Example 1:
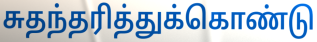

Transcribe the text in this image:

சுதந்தரித்துக்கொண்டு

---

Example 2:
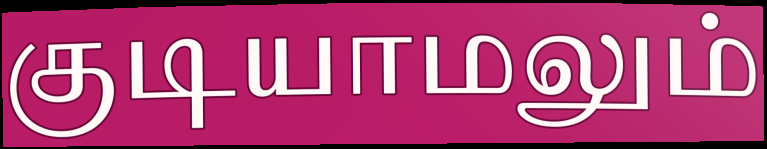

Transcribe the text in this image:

குடியாமலும்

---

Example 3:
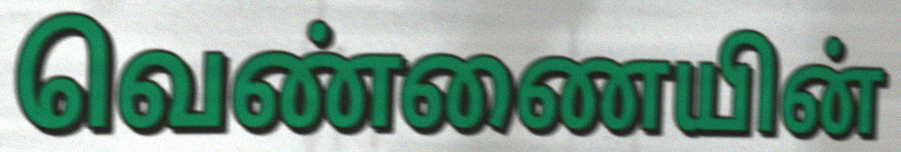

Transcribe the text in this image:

வெண்ணையின்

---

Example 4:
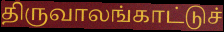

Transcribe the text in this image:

திருவாலங்காட்டுச்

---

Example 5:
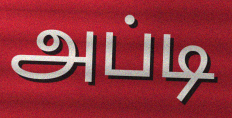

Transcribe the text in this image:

அப்டி